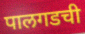
पालगडची